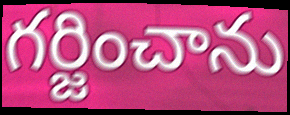
గర్జించాను